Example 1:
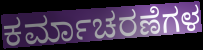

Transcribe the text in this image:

ಕರ್ಮಾಚರಣೆಗಳ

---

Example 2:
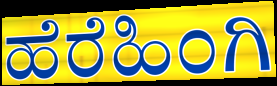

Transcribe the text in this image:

ಹೆರೆಹಿಂಗಿ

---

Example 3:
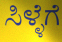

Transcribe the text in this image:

ಸಿಳ್ಳೆಗೆ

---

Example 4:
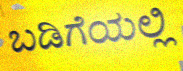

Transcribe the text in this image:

ಬಡಿಗೆಯಲ್ಲಿ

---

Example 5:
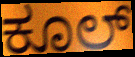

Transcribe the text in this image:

ಕೂಲ್